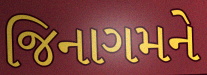
જિનાગમને